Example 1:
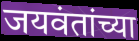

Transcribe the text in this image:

जयवंतांच्या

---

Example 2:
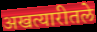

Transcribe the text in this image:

अखत्यारीतले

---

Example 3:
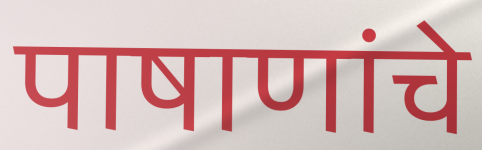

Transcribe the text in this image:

पाषाणांचे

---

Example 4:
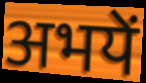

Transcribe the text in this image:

अभयें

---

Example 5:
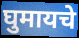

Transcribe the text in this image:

घुमायचे